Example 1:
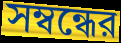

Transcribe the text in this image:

সম্বন্ধের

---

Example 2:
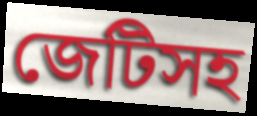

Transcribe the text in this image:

জেটিসহ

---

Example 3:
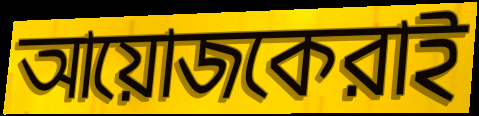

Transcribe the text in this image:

আয়োজকেরাই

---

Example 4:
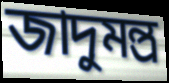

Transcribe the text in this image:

জাদুমন্ত্র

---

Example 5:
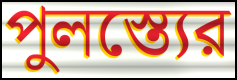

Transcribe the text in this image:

পুলস্ত্যের